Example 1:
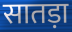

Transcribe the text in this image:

सातड़ा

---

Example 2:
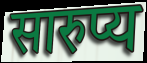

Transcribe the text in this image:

सारुप्य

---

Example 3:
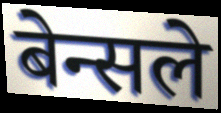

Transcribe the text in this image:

बेन्सले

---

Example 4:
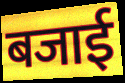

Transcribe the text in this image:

बजाई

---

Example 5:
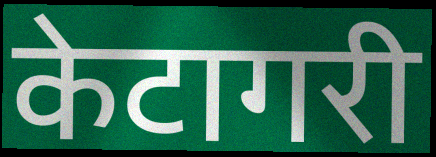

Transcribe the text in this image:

केटागरी